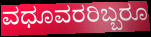
ವಧೂವರರಿಬ್ಬರೂ